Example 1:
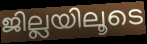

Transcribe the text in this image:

ജില്ലയിലൂടെ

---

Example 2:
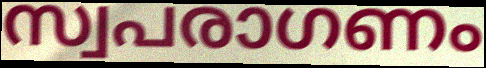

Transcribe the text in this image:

സ്വപരാഗണം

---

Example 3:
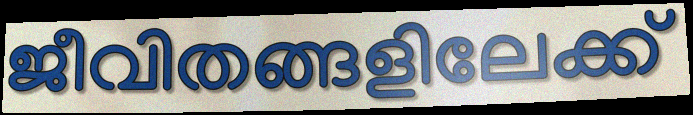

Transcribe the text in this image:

ജീവിതങ്ങളിലേക്ക്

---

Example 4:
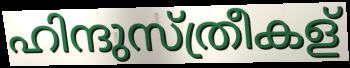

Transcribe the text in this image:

ഹിന്ദുസ്ത്രീകള്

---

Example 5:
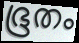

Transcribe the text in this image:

ഭൂതം